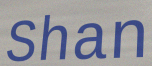
Shan